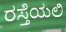
ರಸ್ತೆಯಲಿ